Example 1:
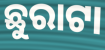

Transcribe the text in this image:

ଛୁରାଟା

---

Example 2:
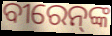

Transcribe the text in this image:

ବୀରେନ୍‍ଙ୍କ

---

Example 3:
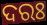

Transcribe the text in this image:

ଦରଃ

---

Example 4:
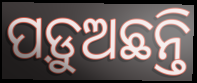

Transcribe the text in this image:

ପଡ଼ୁଅଛନ୍ତି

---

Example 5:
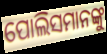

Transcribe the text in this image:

ପୋଲିସମାନଙ୍କୁ